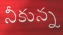
నీకున్న